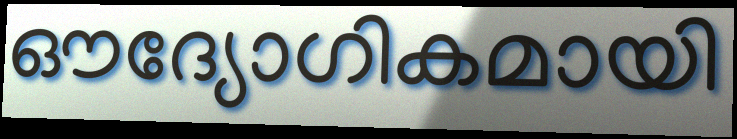
ഔദ്യോഗികമായി